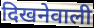
दिखनेवाली